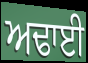
ਅਢਾਈ